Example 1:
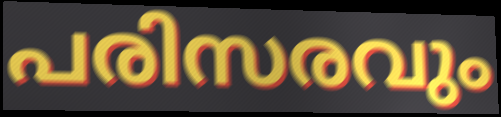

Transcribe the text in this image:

പരിസരവും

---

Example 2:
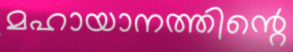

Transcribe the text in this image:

മഹായാനത്തിന്റെ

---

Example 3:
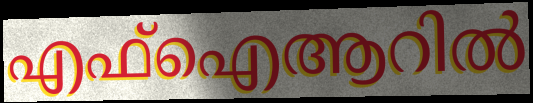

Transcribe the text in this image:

എഫ്ഐആറിൽ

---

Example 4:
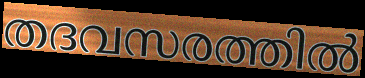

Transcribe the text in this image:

തദവസരത്തിൽ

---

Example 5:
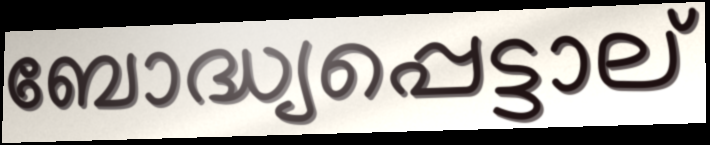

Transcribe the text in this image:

ബോദ്ധ്യപ്പെട്ടാല്